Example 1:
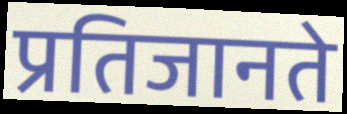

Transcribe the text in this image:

प्रतिजानते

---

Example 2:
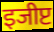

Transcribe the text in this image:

इजीप्ट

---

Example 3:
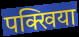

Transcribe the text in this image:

पक्खिया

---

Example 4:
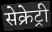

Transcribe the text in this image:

सेक्रेट्री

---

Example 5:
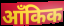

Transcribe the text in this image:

आँकिक